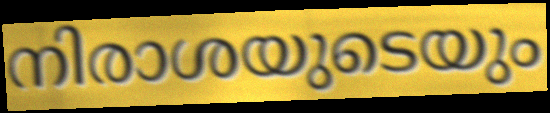
നിരാശയുടെയും